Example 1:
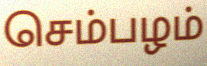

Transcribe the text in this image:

செம்பழம்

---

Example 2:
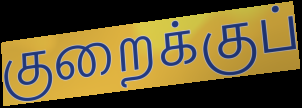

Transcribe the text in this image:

குறைக்குப்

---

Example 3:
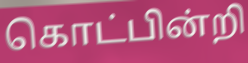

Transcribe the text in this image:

கொட்பின்றி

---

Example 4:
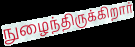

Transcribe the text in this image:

நுழைந்திருக்கிறார்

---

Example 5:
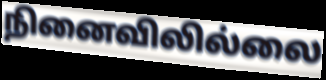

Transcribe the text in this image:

நினைவிலில்லை